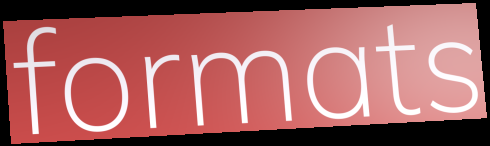
formats